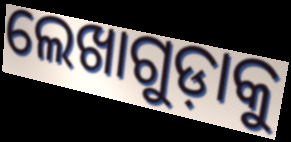
ଲେଖାଗୁଡ଼ାକୁ